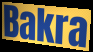
Bakra